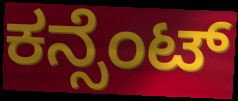
ಕನ್ಸೆಂಟ್